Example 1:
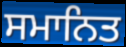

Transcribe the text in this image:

ਸਮਾਨਿਤ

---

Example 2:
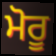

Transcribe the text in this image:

ਮੋਰੂ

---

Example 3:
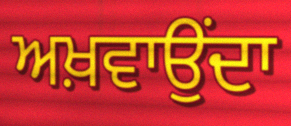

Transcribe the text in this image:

ਅਖ਼ਵਾਉਂਦਾ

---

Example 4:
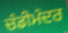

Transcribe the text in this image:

ਚੰਡੀਮੰਦਰ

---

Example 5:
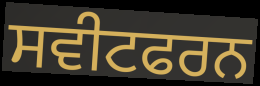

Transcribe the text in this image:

ਸਵੀਟਫਰਨ